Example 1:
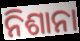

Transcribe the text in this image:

ନିଶାନା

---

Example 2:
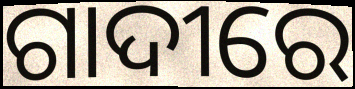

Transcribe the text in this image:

ଗାଦୀରେ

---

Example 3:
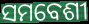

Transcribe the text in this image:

ସମବେଶୀ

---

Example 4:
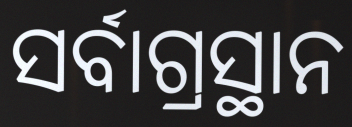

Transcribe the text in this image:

ସର୍ବାଗ୍ରସ୍ଥାନ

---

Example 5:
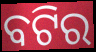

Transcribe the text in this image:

ବଟିର